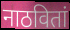
नाठवितां